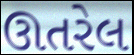
ઊતરેલ